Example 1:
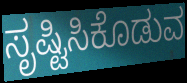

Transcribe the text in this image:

ಸೃಷ್ಟಿಸಿಕೊಡುವ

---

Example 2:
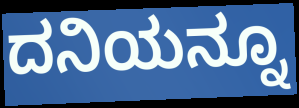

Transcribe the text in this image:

ದನಿಯನ್ನೂ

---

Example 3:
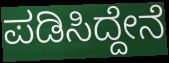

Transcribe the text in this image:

ಪಡಿಸಿದ್ದೇನೆ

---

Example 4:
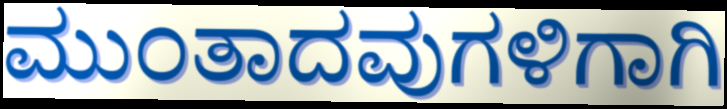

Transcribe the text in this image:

ಮುಂತಾದವುಗಳಿಗಾಗಿ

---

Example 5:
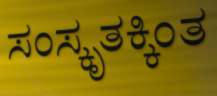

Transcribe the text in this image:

ಸಂಸ್ಕೃತಕ್ಕಿಂತ